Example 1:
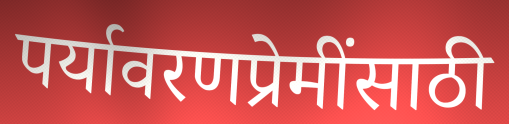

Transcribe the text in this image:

पर्यावरणप्रेमींसाठी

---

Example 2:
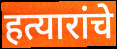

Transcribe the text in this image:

हत्यारांचे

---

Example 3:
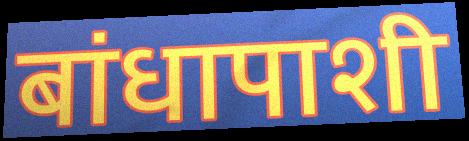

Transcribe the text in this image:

बांधापाशी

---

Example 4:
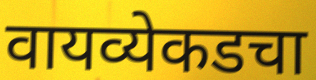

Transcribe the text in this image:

वायव्येकडचा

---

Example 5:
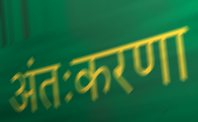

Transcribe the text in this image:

अंतःकरणा